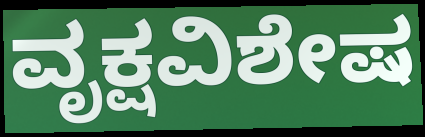
ವೃಕ್ಷವಿಶೇಷ